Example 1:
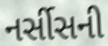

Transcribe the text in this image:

નર્સીસની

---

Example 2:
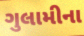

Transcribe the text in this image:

ગુલામીના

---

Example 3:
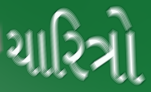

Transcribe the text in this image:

ચારિત્રો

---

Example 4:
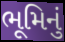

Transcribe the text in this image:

ભૂમિનું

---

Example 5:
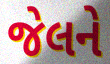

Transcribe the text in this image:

જેલને